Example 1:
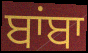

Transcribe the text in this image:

ਬਾਂਬਾ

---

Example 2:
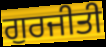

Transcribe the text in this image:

ਗੁਰਜੀਤੀ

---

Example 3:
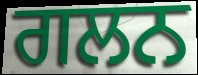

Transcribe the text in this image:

ਗਲਨ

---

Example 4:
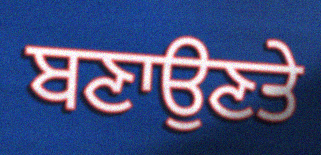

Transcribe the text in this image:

ਬਣਾਉਣਤੇ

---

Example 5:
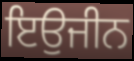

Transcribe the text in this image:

ਇਉਜੀਨ